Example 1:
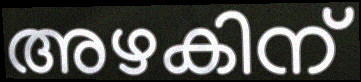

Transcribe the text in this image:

അഴകിന്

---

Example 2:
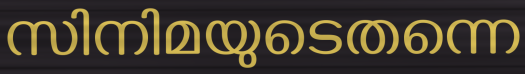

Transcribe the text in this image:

സിനിമയുടെതന്നെ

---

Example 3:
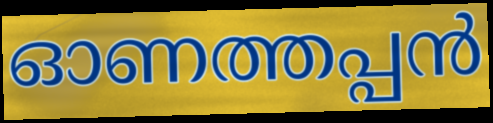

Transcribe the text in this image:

ഓണത്തപ്പൻ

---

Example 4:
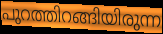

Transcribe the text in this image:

പുറത്തിറങ്ങിയിരുന്ന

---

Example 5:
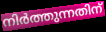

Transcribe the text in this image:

നിർത്തുന്നതിന്